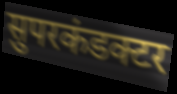
सुपरकंडक्टर